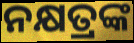
ନକ୍ଷତ୍ରଙ୍କ